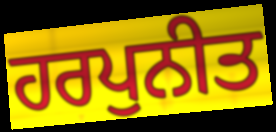
ਹਰਪੁਨੀਤ